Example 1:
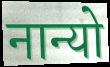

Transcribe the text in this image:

नान्यो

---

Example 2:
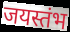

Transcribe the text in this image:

जयस्तंभ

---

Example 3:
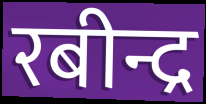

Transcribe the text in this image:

रबीन्द्र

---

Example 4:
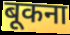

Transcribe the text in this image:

बूकना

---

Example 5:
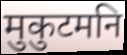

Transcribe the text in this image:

मुकुटमनि